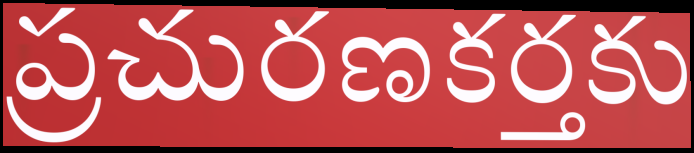
ప్రచురణకర్తకు